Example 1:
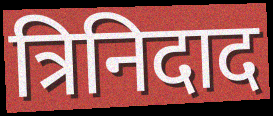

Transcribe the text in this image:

त्रिनिदाद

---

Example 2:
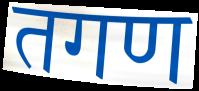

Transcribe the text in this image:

तगण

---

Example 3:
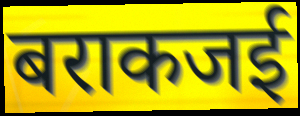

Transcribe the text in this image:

बराकजई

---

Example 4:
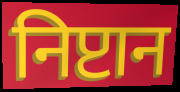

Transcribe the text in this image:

निप्टान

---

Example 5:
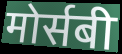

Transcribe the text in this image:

मोर्सबी